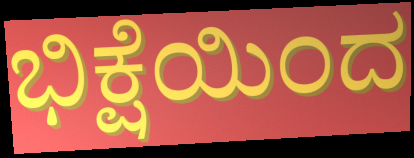
ಭಿಕ್ಷೆಯಿಂದ